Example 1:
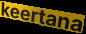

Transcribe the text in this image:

keertana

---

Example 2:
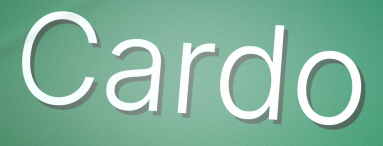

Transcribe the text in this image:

Cardo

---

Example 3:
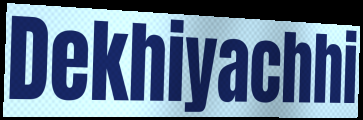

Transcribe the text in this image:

Dekhiyachhi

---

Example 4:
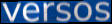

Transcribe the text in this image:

versos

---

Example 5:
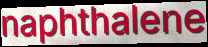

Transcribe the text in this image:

naphthalene